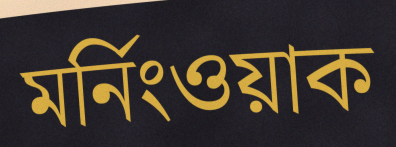
মর্নিংওয়াক